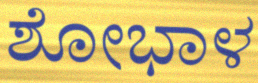
ಶೋಭಾಳ